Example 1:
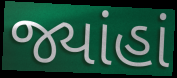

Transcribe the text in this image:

જ્યાંહાં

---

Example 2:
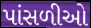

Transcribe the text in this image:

પાંસળીઓ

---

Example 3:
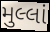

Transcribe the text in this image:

મુલ્લાં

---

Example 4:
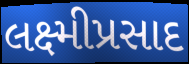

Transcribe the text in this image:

લક્ષ્મીપ્રસાદ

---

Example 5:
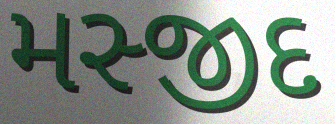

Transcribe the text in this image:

મસ્જીદ